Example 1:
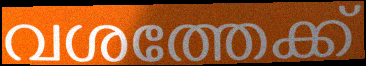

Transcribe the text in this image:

വശത്തേക്ക്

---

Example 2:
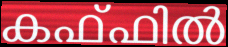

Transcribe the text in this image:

കഫ്ഫിൽ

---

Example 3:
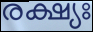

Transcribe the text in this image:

രക്ഷ്യഃ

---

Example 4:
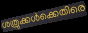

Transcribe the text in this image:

ശത്രുക്കൾക്കെതിരെ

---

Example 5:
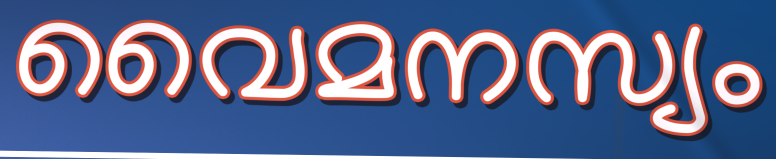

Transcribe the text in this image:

വൈമനസ്യം